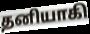
தனியாகி